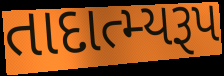
તાદાત્મ્યરૂપ